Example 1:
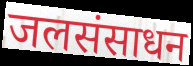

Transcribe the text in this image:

जलसंसाधन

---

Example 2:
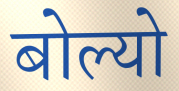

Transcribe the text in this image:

बोल्यो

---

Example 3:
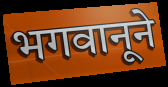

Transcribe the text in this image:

भगवानूने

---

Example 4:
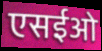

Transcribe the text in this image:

एसईओ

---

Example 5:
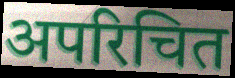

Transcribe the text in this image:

अपरिचित